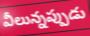
వీలున్నప్పుడు